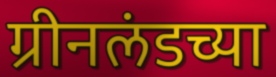
ग्रीनलंडच्या